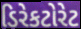
ડિરેકટોરેટ